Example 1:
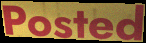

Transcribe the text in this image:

Posted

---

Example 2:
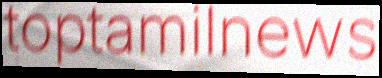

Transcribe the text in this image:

toptamilnews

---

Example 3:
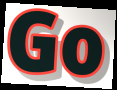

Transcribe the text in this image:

Go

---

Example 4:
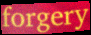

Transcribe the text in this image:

forgery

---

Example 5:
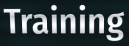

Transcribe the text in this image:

Training